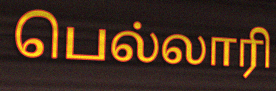
பெல்லாரி